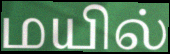
மயில்